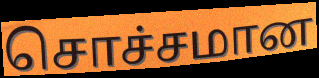
சொச்சமான